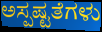
ಅಸ್ಪಷ್ಟತೆಗಳು